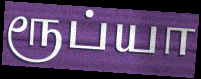
ரூப்யா